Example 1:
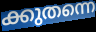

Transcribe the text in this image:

ക്കുതന്നെ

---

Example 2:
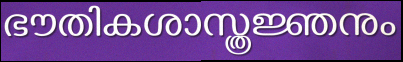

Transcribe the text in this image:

ഭൗതികശാസ്ത്രജ്ഞനും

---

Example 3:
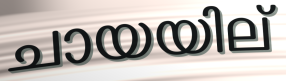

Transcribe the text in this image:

ചായയില്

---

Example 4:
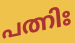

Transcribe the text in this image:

പത്നിഃ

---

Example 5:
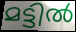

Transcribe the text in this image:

മട്ടിൽ